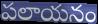
పలాయనం